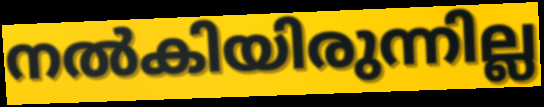
നൽകിയിരുന്നില്ല